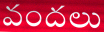
వందలు